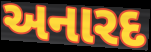
અનારદ